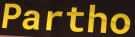
Partho